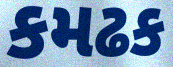
કમઢક